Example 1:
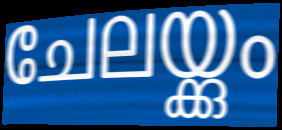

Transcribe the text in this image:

ചേലയ്ക്കും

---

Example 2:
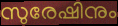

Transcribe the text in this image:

സുരേഷിനും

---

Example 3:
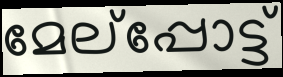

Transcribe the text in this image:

മേല്പ്പോട്ട്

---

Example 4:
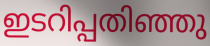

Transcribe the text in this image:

ഇടറിപ്പതിഞ്ഞു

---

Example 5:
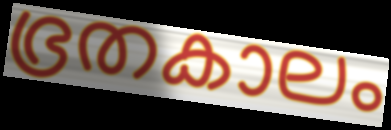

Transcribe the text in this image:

ഭ്രതകാലം